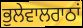
ਭੁਲੇਵਾਲਰਾਠਾਂ